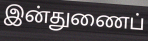
இன்துணைப்